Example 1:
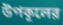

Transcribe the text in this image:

উপকূলের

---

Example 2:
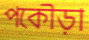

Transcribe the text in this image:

পকৌড়া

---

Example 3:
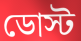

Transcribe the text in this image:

ডোস্ট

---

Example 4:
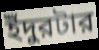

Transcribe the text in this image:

ইঁদুরটার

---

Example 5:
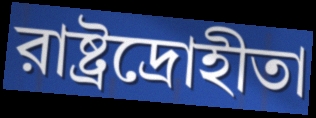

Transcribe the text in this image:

রাষ্ট্রদ্রোহীতা